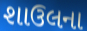
શાઉલના